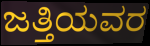
ಜತ್ತಿಯವರ